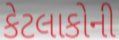
કેટલાકોની